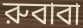
রুবাবা